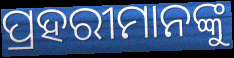
ପ୍ରହରୀମାନଙ୍କୁ